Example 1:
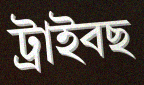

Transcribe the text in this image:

ট্ৰাইবছ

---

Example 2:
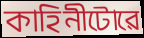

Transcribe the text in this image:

কাহিনীটোৱে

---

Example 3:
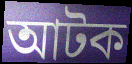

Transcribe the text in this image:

আটক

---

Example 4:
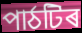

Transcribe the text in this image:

পাঠটিৰ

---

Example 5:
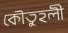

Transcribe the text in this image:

কৌতুহলী